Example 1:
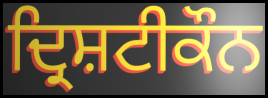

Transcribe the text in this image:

ਦ੍ਰਿਸ਼ਟੀਕੌਨ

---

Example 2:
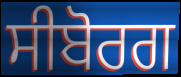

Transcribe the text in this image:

ਸੀਬੋਰਗ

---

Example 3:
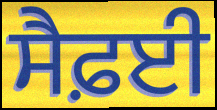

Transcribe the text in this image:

ਸੈਫ਼ਈ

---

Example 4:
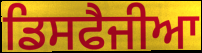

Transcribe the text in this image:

ਡਿਸਫੈਜੀਆ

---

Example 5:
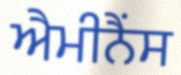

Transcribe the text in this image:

ਐਮੀਨੈਂਸ